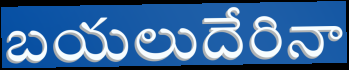
బయలుదేరినా